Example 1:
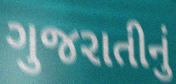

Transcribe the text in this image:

ગુજરાતીનું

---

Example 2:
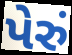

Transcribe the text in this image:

પેરું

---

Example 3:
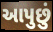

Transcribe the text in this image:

આપુછું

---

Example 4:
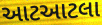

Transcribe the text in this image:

આટઆટલા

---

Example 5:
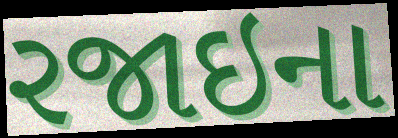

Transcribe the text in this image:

રજાઇના